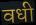
वधी